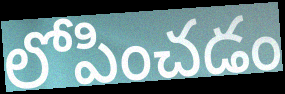
లోపించడం